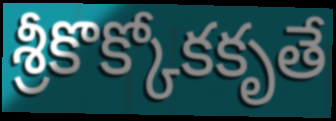
శ్రీకొక్కోకకృతే